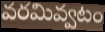
వరమివ్వటం